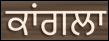
ਕਾਂਗਲਾ